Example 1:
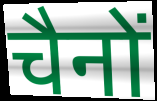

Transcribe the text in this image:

चैनों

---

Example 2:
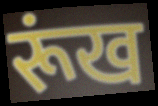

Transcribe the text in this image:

रूंख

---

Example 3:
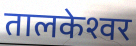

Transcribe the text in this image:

तालकेश्वर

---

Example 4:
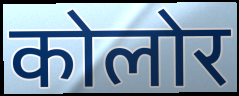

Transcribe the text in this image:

कोलोर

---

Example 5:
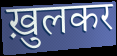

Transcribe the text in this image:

ख़ुलकर